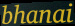
bhanai